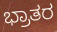
ಭ್ರಾತರ